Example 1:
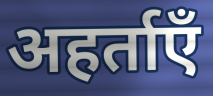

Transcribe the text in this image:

अहर्ताएँ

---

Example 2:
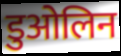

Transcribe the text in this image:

डुओलिन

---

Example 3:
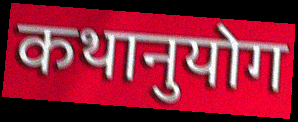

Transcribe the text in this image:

कथानुयोग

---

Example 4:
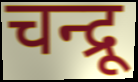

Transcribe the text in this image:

चन्द्रू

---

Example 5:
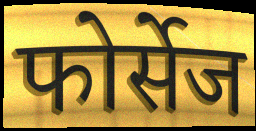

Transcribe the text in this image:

फोर्सेज